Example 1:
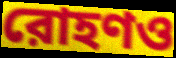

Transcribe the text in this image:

রোহণও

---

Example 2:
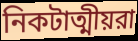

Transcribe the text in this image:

নিকটাত্মীয়রা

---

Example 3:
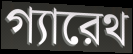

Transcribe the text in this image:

গ্যারেথ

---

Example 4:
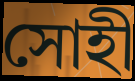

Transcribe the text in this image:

সোহী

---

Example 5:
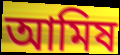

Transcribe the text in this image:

আমিষ